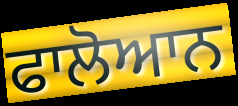
ਫਾਲੋਆਨ